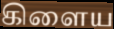
கிளைய